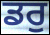
ਡਰੁ